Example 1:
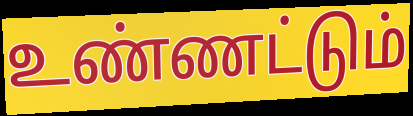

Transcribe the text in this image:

உண்ணட்டும்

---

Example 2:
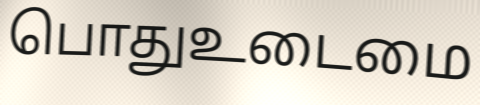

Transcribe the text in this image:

பொதுஉடைமை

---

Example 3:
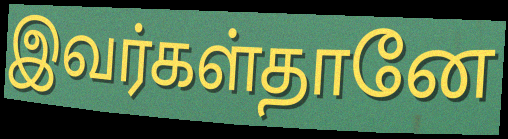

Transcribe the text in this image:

இவர்கள்தானே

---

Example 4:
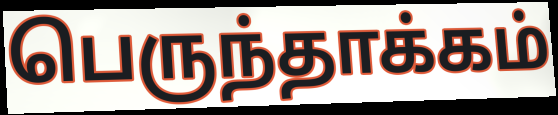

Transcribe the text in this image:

பெருந்தாக்கம்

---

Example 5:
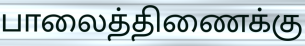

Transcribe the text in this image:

பாலைத்திணைக்கு